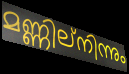
മണ്ണില്നിന്നും